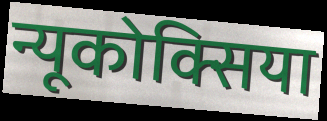
न्यूकोक्सिया